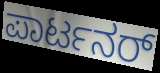
ಪಾರ್ಟನರ್